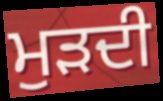
ਮੁੜਦੀ